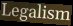
Legalism